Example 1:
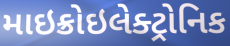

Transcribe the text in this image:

માઇક્રોઇલેક્ટ્રોનિક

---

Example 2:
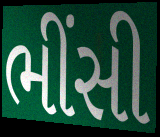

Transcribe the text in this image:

ભીંસી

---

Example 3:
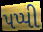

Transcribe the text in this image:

પપ્પી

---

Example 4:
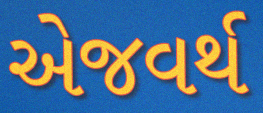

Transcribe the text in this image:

એજવર્થ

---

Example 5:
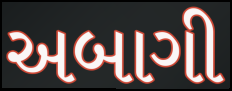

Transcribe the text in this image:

અબાગી